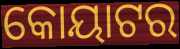
କୋୟାଟର